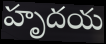
హృదయ